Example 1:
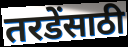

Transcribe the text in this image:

तरडेंसाठी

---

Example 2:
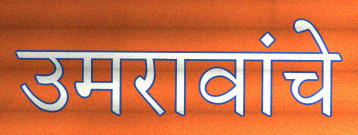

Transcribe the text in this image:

उमरावांचे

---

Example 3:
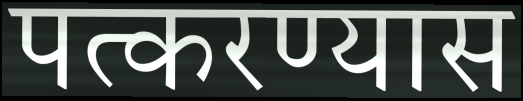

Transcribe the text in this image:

पत्करण्यास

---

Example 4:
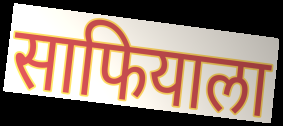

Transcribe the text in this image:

साफियाला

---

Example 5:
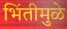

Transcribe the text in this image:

भिंतीमुळे